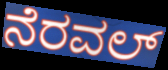
ನೆರವಲ್